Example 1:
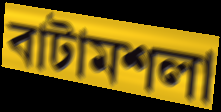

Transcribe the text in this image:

বাটামশলা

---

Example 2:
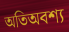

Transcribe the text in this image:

অতিঅবশ্য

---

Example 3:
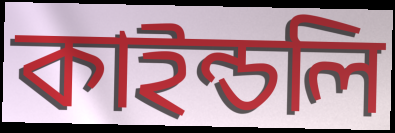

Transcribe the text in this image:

কাইন্ডলি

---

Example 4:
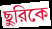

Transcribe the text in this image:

ছুরিকে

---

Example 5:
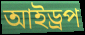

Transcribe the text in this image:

আইড্রপ